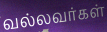
வல்லவர்கள்